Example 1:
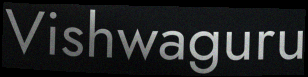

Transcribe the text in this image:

Vishwaguru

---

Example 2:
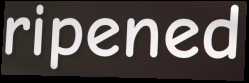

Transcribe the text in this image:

ripened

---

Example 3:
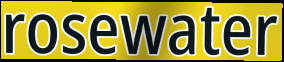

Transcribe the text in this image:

rosewater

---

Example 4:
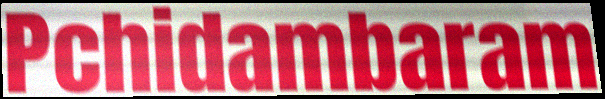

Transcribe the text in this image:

Pchidambaram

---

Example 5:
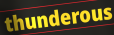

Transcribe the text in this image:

thunderous